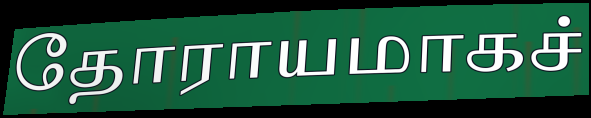
தோராயமாகச்